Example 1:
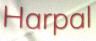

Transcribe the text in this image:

Harpal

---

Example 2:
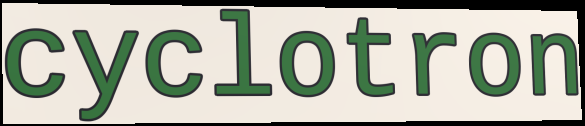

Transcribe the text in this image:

cyclotron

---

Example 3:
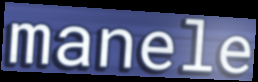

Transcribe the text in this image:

manele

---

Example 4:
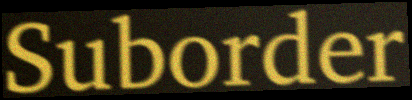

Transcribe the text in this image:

Suborder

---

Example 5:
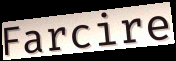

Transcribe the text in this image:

Farcire